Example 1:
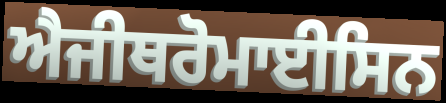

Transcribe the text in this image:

ਐਜੀਥਰੋਮਾਈਸਿਨ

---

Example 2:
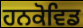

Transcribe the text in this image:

ਹਨਕੋਵਿਡ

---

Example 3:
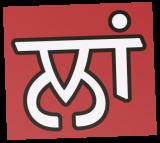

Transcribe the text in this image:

ਲਾਂ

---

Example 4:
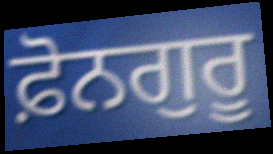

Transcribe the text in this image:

ਫ਼ੋਨਗੁਰੂ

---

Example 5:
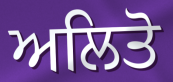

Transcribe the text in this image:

ਅਲਿਤੋ